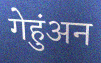
गेहुंअन